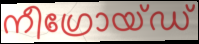
നീഗ്രോയ്ഡ്